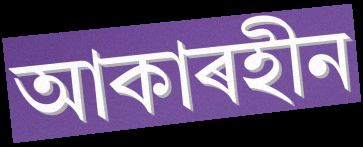
আকাৰহীন